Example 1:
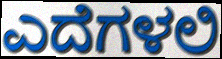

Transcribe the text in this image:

ಎದೆಗಳಲಿ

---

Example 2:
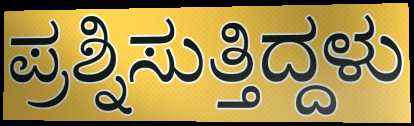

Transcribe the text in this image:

ಪ್ರಶ್ನಿಸುತ್ತಿದ್ದಳು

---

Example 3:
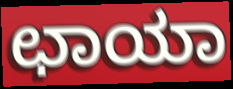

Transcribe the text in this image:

ಛಾಯಾ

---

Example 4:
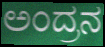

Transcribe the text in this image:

ಅಂದ್ರನ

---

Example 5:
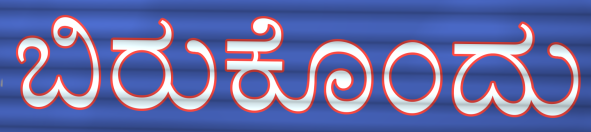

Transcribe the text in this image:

ಬಿರುಕೊಂದು